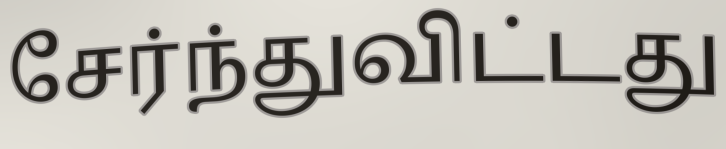
சேர்ந்துவிட்டது